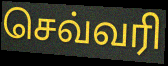
செவ்வரி